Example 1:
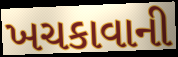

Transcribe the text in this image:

ખચકાવાની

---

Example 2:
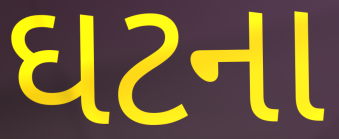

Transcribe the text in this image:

ઘટના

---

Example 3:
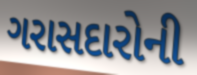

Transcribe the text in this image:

ગરાસદારોની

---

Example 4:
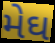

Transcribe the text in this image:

મેઘ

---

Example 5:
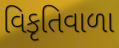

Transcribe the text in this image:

વિકૃતિવાળા